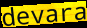
devara